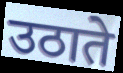
उठाते